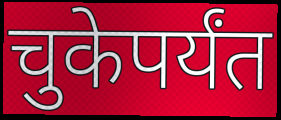
चुकेपर्यंत